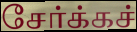
சேர்க்கச்